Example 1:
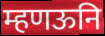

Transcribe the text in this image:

म्हणऊनि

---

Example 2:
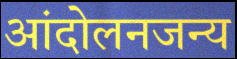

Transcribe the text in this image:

आंदोलनजन्य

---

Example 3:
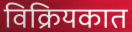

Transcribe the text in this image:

विक्रियकात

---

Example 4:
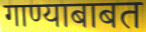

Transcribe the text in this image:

गाण्याबाबत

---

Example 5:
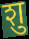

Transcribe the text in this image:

शु